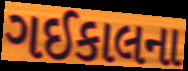
ગઈકાલના